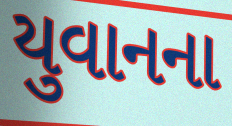
યુવાનના